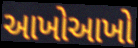
આખોઆખો